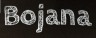
Bojana